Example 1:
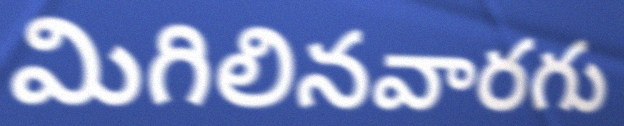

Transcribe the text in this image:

మిగిలినవారగు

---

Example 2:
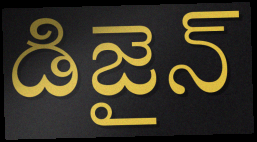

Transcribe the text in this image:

డిజైన్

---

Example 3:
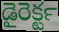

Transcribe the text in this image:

డైరెక్టర్‍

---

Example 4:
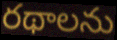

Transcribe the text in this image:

రథాలను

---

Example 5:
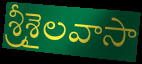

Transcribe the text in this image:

శ్రీశైలవాసా